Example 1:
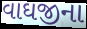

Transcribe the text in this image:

વાઘજીના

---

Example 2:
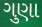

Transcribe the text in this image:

ગુણા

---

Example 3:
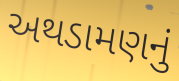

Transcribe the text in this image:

અથડામણનું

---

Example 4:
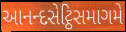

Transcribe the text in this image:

આનન્દસેટ્ઠિસમાગમે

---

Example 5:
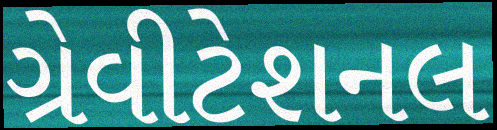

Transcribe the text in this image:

ગ્રેવીટેશનલ